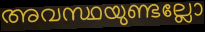
അവസ്ഥയുണ്ടല്ലോ